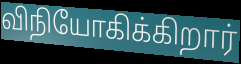
விநியோகிக்கிறார்